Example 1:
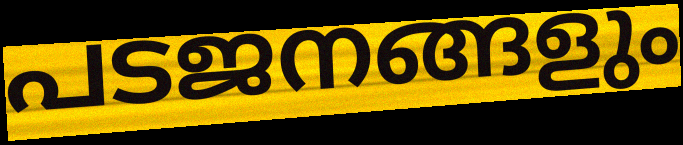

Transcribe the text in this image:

പടജനങ്ങളും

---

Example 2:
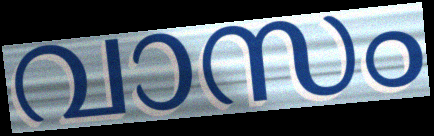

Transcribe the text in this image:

വാസം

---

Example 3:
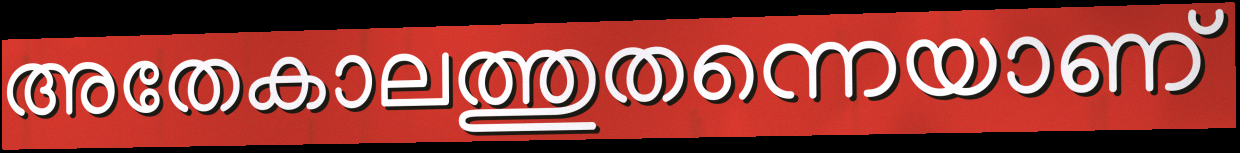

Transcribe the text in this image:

അതേകാലത്തുതന്നെയാണ്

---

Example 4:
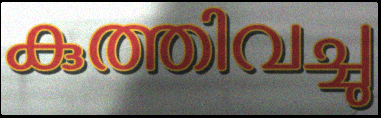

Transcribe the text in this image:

കുത്തിവച്ചു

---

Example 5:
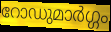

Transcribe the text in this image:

റോഡുമാർഗ്ഗം